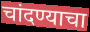
चांदण्याचा